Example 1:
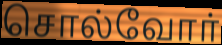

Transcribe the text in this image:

சொல்வோர்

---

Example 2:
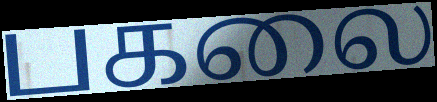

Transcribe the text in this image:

பகலை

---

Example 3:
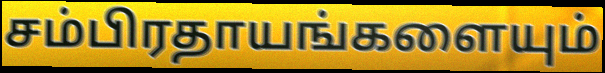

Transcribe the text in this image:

சம்பிரதாயங்களையும்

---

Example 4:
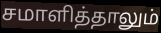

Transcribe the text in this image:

சமாளித்தாலும்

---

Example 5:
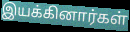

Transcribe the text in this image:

இயக்கினார்கள்